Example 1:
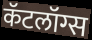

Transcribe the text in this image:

कॅटलॉग्स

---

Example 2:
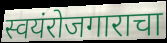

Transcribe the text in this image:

स्वयंरोजगाराचा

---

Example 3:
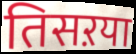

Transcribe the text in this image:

तिसऱया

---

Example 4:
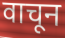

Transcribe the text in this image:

वाचून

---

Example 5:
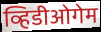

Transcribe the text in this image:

व्हिडीओगेम